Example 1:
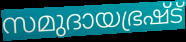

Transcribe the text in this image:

സമുദായഭ്രഷ്ട്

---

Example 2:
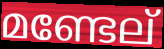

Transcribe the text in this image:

മണ്ടേല്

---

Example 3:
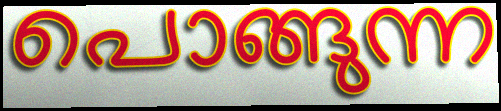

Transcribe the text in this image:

പൊങ്ങുന്ന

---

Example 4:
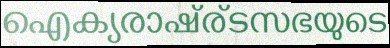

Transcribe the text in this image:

ഐക്യരാഷ്ര്ടസഭയുടെ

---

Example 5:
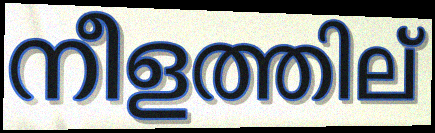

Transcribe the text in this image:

നീളത്തില്